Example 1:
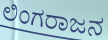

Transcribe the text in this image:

ಲಿಂಗರಾಜನ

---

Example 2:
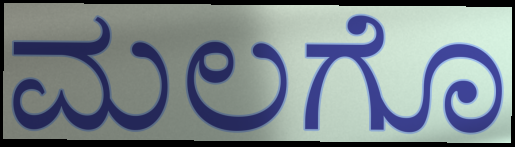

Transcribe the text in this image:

ಮಲಗೊ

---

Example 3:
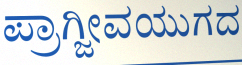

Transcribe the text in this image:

ಪ್ರಾಗ್ಜೀವಯುಗದ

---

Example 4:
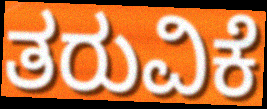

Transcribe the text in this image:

ತರುವಿಕೆ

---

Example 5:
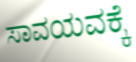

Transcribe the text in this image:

ಸಾವಯವಕ್ಕೆ